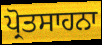
ਪ੍ਰੋਤਸਾਹਨਾ